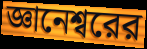
জ্ঞানেশ্বরের